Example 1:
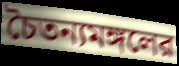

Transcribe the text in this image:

চৈতন্যমঙ্গলের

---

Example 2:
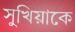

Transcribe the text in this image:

সুখিয়াকে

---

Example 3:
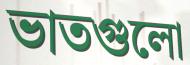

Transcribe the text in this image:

ভাতগুলো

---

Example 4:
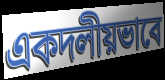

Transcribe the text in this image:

একদলীয়ভাবে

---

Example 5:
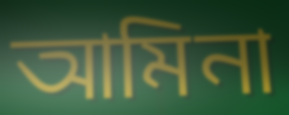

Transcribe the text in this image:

আমিনা